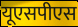
यूएसपीएस